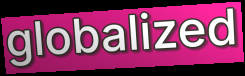
globalized